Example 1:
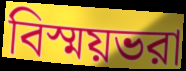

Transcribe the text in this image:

বিস্ময়ভরা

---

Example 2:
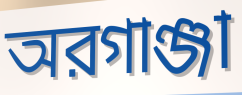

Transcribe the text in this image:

অরগাঞ্জা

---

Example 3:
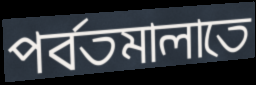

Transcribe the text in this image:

পর্বতমালাতে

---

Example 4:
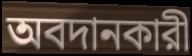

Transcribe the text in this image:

অবদানকারী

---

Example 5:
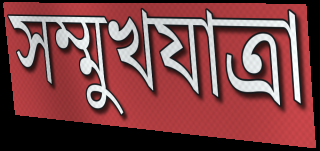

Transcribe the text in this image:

সম্মুখযাত্রা